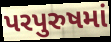
પરપુરુષમાં